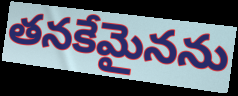
తనకేమైనను